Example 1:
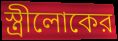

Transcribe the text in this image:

স্ত্রীলোকের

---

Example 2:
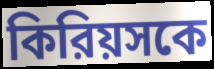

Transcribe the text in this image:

কিরিয়সকে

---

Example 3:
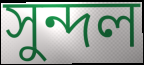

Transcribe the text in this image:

সুন্দল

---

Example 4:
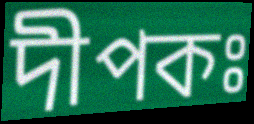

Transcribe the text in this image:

দীপকঃ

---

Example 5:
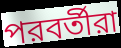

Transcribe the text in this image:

পরবর্তীরা